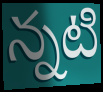
న్నటి